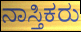
ನಾಸ್ತಿಕರು